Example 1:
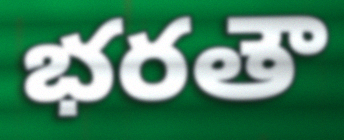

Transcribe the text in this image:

భరతౌ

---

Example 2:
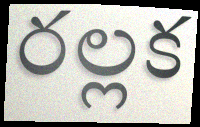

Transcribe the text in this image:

రల్లక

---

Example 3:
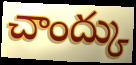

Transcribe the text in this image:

చాంద్కు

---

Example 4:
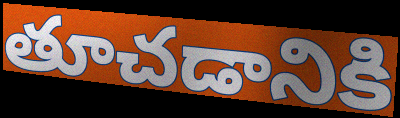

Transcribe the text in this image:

తూచడానికి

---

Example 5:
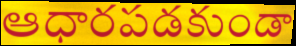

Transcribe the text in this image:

ఆధారపడకుండా